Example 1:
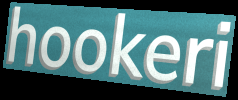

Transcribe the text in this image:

hookeri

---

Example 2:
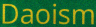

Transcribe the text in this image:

Daoism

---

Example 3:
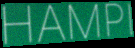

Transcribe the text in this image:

HAMPI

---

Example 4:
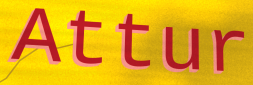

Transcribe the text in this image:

Attur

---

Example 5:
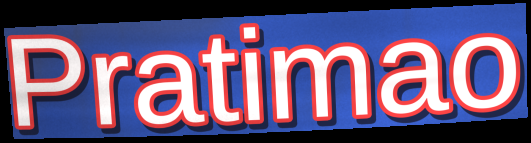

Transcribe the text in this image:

Pratimao